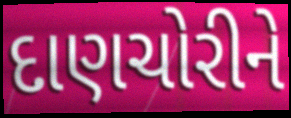
દાણચોરીને